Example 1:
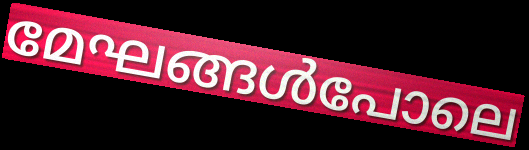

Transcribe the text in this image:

മേഘങ്ങൾപോലെ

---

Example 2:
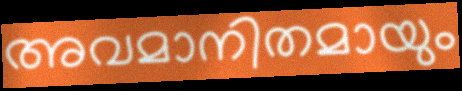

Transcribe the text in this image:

അവമാനിതമായും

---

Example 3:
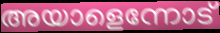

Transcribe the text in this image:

അയാളെന്നോട്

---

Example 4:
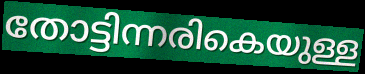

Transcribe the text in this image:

തോട്ടിന്നരികെയുള്ള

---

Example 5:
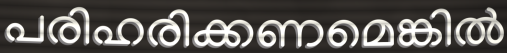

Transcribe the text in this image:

പരിഹരിക്കണമെങ്കിൽ